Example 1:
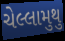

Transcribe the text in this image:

ચેલ્લામુથુ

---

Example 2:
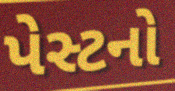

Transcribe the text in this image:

પેસ્ટનો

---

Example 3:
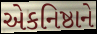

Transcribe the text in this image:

એકનિષ્ઠાને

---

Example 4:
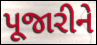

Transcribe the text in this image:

પૂજારીને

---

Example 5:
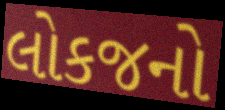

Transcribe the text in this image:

લોકજનો